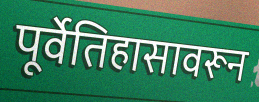
पूर्वेतिहासावरून